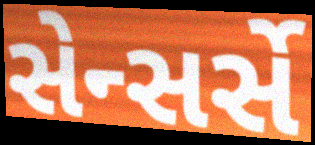
સેન્સર્સે